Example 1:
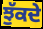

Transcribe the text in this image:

ਝੁੱਕਦੇ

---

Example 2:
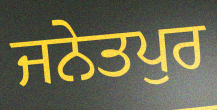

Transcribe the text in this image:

ਜਨੇਤਪੁਰ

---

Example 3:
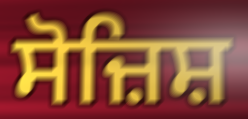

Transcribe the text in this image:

ਸੋਜ਼ਿਸ਼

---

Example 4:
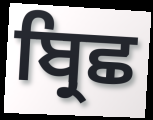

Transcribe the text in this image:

ਬ੍ਰਿਛ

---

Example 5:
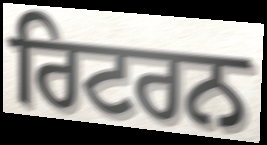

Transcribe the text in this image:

ਰਿਟਰਨ